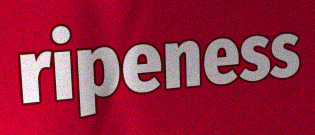
ripeness